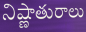
నిష్ణాతురాలు